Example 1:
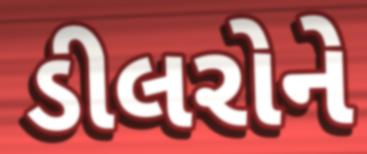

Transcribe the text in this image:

ડીલરોને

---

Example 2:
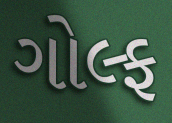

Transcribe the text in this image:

ગોલ્ફ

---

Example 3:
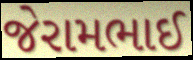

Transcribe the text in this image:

જેરામભાઈ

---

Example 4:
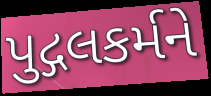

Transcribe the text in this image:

પુદ્ગલકર્મને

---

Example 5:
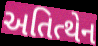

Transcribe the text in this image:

અતિત્થેન